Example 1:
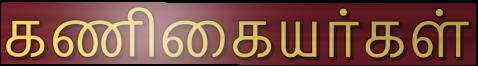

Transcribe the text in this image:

கணிகையர்கள்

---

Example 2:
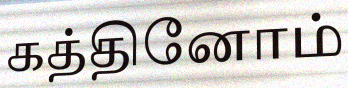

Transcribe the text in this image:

கத்தினோம்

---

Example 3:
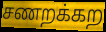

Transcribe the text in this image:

சணறக்கற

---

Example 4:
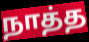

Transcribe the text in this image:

நாத்த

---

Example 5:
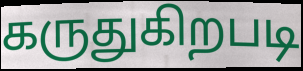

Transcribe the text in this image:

கருதுகிறபடி